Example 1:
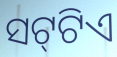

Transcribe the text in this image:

ସଟ୍‍ଟିଏ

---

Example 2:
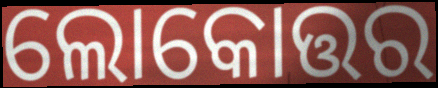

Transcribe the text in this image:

ଲୋକୋତ୍ତର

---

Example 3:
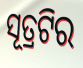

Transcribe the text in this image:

ସୂତ୍ରଟିର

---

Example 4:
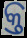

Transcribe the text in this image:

କ୍ତ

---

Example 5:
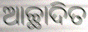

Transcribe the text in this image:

ଆଚ୍ଛାଦିତ